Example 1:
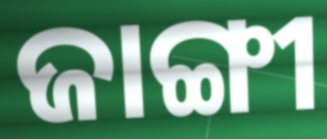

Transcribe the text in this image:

ଜାଙ୍ଗୀ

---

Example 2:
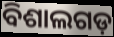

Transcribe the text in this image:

ବିଶାଲଗଡ଼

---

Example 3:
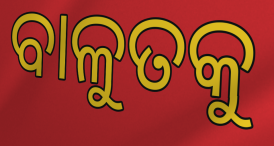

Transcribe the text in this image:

ବାଳୁତକୁ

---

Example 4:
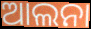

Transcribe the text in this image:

ଆଲନା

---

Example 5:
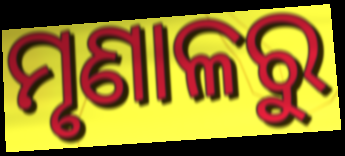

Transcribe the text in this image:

ମୃଣାଳରୁ